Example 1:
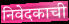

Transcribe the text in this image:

निवेदकाची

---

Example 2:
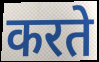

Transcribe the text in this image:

करते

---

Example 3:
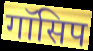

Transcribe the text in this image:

गॉसिप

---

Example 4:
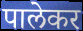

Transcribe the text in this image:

पालेकर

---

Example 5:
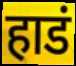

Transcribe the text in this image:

हाडं